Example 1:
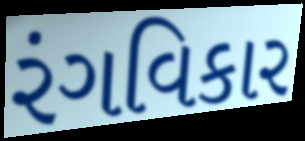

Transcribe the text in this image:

રંગવિકાર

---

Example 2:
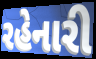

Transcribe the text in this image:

રહેનારી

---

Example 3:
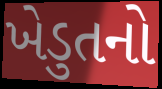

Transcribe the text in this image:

ખેડુતનો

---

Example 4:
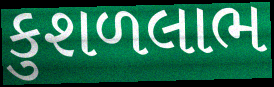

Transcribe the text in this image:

કુશળલાભ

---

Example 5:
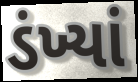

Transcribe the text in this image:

ડંખ્યાં